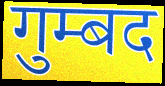
गुम्बद